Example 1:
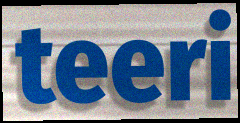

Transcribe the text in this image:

teeri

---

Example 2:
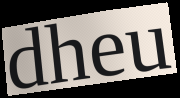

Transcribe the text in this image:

dheu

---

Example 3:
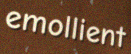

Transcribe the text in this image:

emollient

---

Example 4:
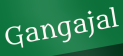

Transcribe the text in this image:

Gangajal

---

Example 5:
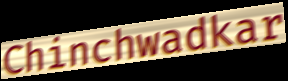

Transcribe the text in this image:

Chinchwadkar